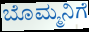
ಬೊಮ್ಮನಿಗೆ